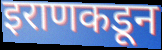
इराणकडून